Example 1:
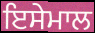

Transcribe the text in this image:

ਇਸੇਮਾਲ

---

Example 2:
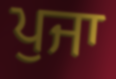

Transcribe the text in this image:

ਪੁਜਾ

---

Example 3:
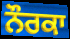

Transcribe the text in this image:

ਨੌਰਕਾ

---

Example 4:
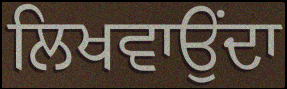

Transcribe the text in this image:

ਲਿਖਵਾਉਂਦਾ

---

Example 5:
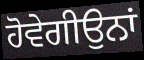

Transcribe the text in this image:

ਹੋਵੇਗੀਉਨਾਂ